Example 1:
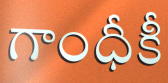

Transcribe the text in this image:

గాంధీకీ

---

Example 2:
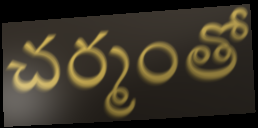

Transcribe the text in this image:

చర్మంతో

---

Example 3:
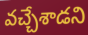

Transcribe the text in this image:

వచ్చేశాడని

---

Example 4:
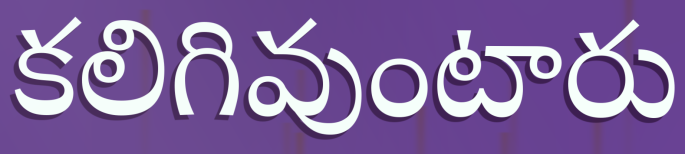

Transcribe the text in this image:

కలిగివుంటారు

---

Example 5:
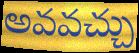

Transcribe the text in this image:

అవవచ్చు